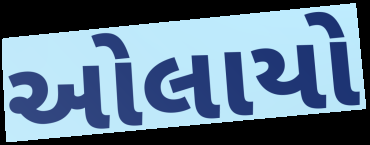
ઓલાયો